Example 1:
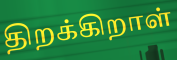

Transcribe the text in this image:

திறக்கிறாள்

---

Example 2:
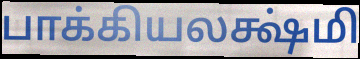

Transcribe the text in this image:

பாக்கியலக்ஷ்மி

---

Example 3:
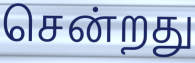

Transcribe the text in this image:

சென்றது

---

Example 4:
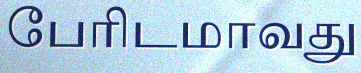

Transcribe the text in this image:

பேரிடமாவது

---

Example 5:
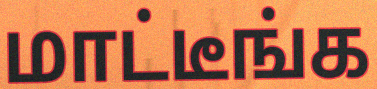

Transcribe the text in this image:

மாட்டீங்க